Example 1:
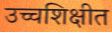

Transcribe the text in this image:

उच्चशिक्षीत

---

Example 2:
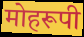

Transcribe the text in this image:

मोहरूपी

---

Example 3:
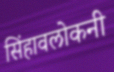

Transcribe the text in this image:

सिंहावलोकनी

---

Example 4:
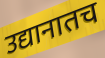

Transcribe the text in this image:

उद्यानातच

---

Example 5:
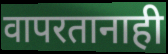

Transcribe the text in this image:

वापरतानाही